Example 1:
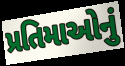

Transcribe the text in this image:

પ્રતિમાઓનું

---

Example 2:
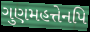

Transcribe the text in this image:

ગુણમહત્તેનપિ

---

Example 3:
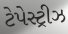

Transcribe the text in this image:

ટેપેસ્ટ્રીઝ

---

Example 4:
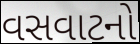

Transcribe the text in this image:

વસવાટનો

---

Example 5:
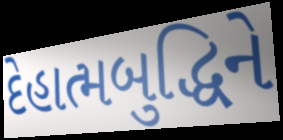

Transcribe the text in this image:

દેહાત્મબુદ્ધિને